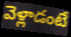
వెళ్లాడంటే